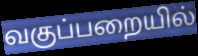
வகுப்பறையில்